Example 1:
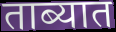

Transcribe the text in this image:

ताब्यात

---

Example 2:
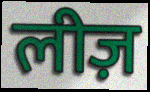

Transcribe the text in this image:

लीज़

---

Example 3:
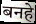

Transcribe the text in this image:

बनहे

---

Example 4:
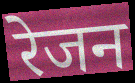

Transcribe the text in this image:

रेजन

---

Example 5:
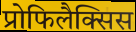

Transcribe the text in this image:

प्रोफिलैक्सिस